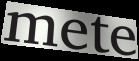
mete